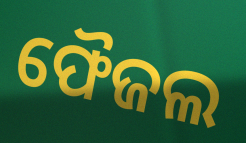
ଫୈଜଲ